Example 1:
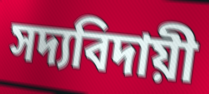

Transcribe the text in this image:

সদ্যবিদায়ী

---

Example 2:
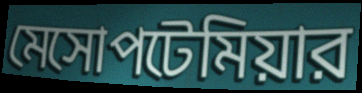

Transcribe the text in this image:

মেসোপটেমিয়ার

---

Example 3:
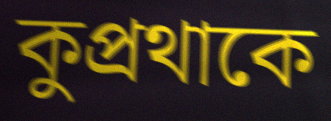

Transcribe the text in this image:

কুপ্রথাকে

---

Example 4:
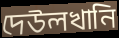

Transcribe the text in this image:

দেউলখানি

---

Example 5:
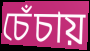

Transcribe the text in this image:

চেঁচায়